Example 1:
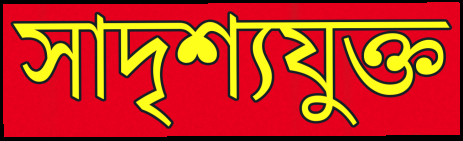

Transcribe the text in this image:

সাদৃশ্যযুক্ত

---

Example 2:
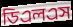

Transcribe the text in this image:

ডিএলএস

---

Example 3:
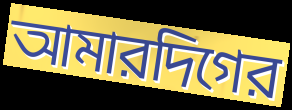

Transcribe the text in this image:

আমারদিগের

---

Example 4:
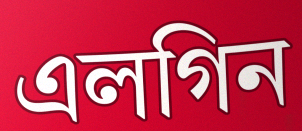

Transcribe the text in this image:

এলগিন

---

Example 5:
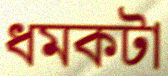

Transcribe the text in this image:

ধমকটা